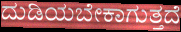
ದುಡಿಯಬೇಕಾಗುತ್ತದೆ